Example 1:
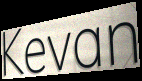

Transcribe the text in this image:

Kevan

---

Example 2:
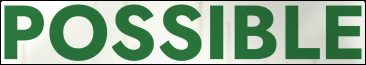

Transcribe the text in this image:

POSSIBLE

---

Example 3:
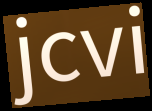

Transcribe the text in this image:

jcvi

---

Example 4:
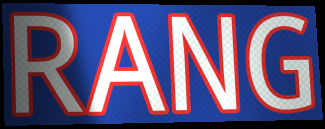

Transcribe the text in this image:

RANG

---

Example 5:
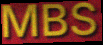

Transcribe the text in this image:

MBS